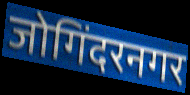
जोगिंदरनगर